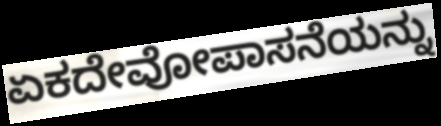
ಏಕದೇವೋಪಾಸನೆಯನ್ನು